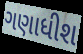
ગણાધીશ